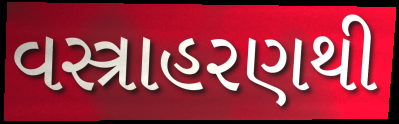
વસ્ત્રાહરણથી